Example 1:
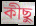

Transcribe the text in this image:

কীছু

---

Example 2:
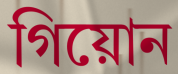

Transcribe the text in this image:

গিয়োন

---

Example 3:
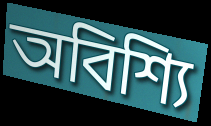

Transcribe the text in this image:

অবিশ্যি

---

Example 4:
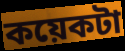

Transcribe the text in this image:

কয়েকটা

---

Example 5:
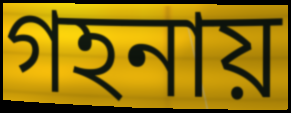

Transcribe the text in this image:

গহনায়